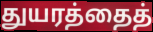
துயரத்தைத்